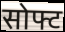
सोफ्ट